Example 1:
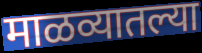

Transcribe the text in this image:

माळव्यातल्या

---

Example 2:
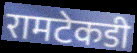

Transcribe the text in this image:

रामटेकडी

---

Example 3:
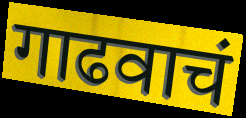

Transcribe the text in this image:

गाढवाचं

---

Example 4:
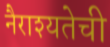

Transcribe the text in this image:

नैराश्यतेची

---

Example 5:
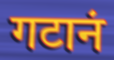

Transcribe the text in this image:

गटानं